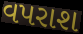
વપરાશ